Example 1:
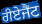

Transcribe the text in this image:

ਰੀਏਜੈਂਟ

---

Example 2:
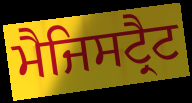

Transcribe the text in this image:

ਮੈਜਿਸਟ੍ਰੈਟ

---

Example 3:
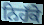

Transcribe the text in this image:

ਨਿਹੱਕੇ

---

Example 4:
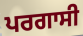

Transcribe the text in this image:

ਪਰਗਾਸੀ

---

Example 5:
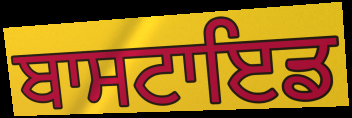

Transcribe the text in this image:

ਬਾਸਟਾਇਡ